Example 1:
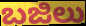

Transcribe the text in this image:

ಬಜಿಲು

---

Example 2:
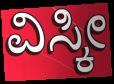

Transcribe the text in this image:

ವಿಸ್ಕೀ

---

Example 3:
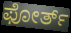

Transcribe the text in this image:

ಫೋರ್ತ್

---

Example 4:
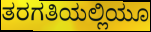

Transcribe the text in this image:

ತರಗತಿಯಲ್ಲಿಯೂ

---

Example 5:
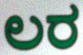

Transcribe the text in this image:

ಲರ